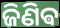
ଜିଣିଵ